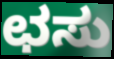
ಛಸು